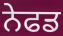
ਨੇਫਡ